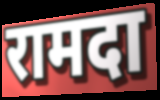
रामदा